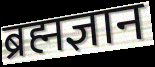
ब्रह्मज्ञान